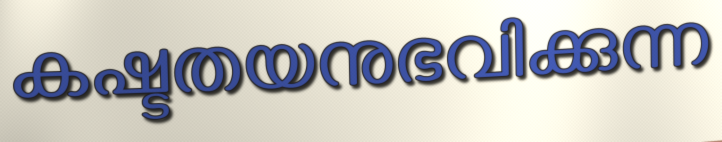
കഷ്ടതയനുഭവിക്കുന്ന